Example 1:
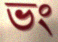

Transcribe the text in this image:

ভং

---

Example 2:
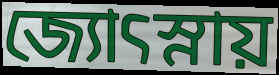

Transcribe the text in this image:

জ্যোৎস্নায়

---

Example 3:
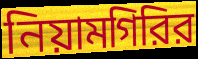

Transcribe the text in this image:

নিয়ামগিরির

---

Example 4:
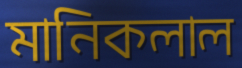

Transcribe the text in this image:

মানিকলাল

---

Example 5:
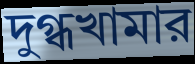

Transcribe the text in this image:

দুগ্ধখামার